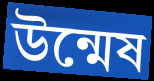
উন্মেষ